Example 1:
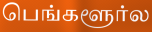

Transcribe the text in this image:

பெங்களூர்ல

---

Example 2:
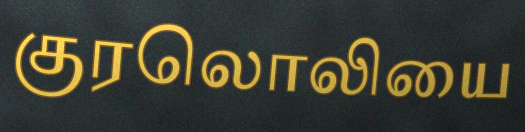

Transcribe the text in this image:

குரலொலியை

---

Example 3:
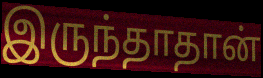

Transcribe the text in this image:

இருந்தாதான்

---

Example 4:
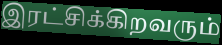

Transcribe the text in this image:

இரட்சிக்கிறவரும்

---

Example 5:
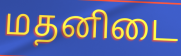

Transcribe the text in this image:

மதனிடை